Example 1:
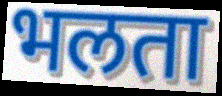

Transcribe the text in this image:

भलता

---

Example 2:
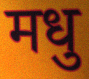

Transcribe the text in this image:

मधु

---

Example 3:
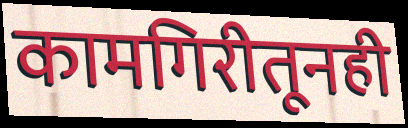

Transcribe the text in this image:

कामगिरीतूनही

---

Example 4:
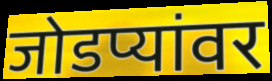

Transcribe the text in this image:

जोडप्यांवर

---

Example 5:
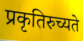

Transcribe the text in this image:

प्रकृतिरुच्यते